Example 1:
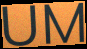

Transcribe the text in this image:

UM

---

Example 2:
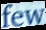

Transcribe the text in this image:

few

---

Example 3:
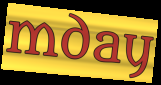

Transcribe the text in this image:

mday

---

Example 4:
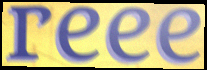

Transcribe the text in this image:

reee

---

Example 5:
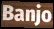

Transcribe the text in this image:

Banjo